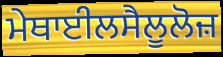
ਮੇਥਾਈਲਸੈਲੂਲੋਜ਼